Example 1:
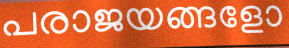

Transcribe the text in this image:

പരാജയങ്ങളോ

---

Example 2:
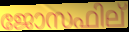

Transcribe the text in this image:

ജോസഫില്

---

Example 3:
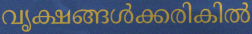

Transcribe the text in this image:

വൃക്ഷങ്ങൾക്കരികിൽ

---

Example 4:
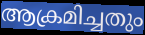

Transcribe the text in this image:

ആക്രമിച്ചതും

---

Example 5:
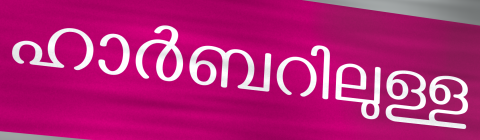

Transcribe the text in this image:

ഹാർബറിലുള്ള